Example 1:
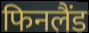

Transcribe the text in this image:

फिनलैंड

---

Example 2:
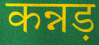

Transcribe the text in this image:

कन्नड़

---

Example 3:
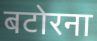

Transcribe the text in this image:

बटोरना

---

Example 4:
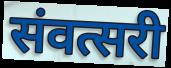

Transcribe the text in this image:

संवत्सरी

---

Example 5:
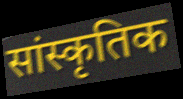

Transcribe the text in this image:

सांस्‍कृतिक